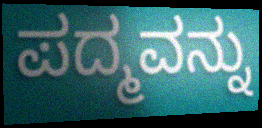
ಪದ್ಮವನ್ನು